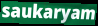
saukaryam